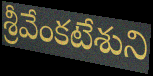
శ్రీవేంకటేశుని